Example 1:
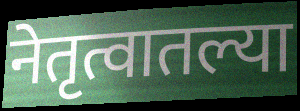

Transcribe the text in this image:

नेतृत्वातल्या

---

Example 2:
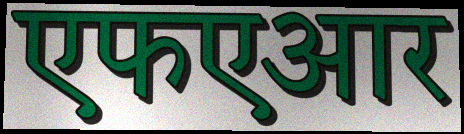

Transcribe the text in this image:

एफएआर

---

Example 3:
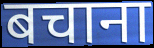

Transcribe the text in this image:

बचाना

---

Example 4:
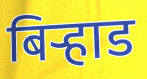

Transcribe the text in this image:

बिर्‍हाड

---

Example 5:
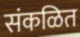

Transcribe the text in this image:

संकळित